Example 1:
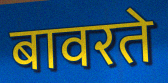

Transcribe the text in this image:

बावरते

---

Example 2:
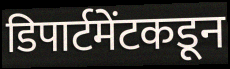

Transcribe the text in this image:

डिपार्टमेंटकडून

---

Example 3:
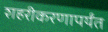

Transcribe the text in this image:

शहरीकरणापर्यंत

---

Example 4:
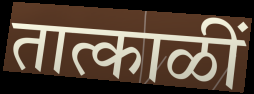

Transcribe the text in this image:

तात्काळीं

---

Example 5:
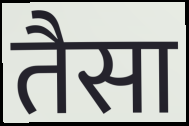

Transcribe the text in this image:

तैसा